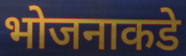
भोजनाकडे